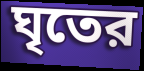
ঘৃতের